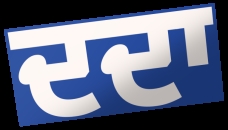
ਦਦਾ